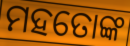
ମହତୋଙ୍କ